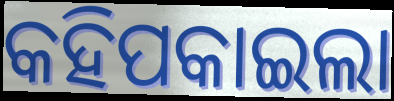
କହିପକାଇଲା